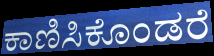
ಕಾಣಿಸಿಕೊಂಡರೆ